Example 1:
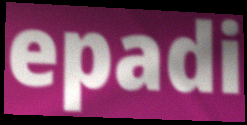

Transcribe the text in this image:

epadi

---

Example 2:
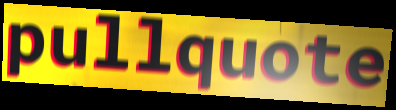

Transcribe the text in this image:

pullquote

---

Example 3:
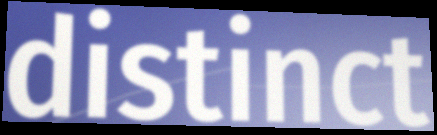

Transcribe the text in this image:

distinct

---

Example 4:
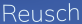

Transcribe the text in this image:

Reusch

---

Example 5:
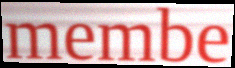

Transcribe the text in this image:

membe